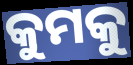
କୁମକୁ